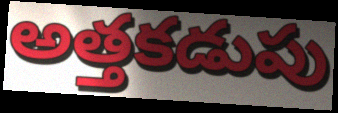
అత్తకడుపు